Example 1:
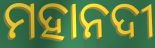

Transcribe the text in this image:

ମହାନଦୀ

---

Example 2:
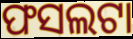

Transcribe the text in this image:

ଫସଲଟା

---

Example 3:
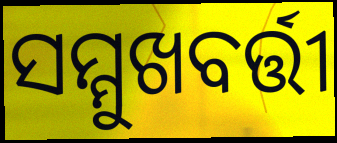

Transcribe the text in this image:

ସମ୍ମୁଖବର୍ତ୍ତୀ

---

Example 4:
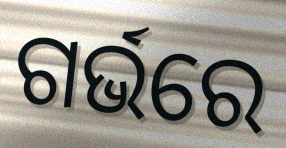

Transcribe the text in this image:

ଗର୍ଭରେ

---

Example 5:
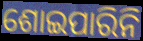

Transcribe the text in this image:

ଶୋଇପାରିନି